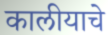
कालीयाचे